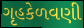
ગૃહકેળવણી